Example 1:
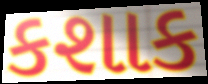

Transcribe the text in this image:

કશાક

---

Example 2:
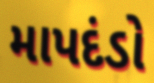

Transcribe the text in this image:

માપદંડો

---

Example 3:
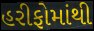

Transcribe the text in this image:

હરીફોમાંથી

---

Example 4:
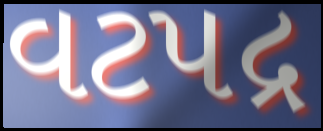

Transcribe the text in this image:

વટપદ્ર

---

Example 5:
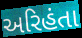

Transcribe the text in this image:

અરિહંતા